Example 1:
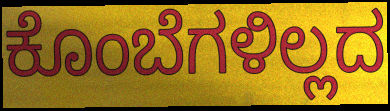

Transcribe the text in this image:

ಕೊಂಬೆಗಳಿಲ್ಲದ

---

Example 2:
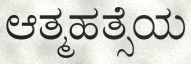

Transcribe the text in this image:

ಆತ್ಮಹತ್ಸೆಯ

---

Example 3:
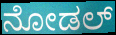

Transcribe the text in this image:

ನೋಡಲ್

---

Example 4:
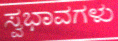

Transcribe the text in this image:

ಸ್ವಭಾವಗಳು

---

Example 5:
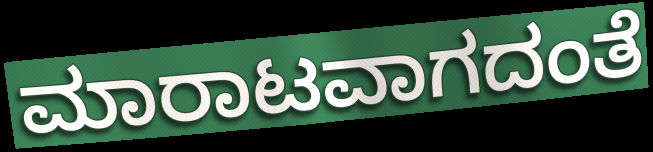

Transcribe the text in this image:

ಮಾರಾಟವಾಗದಂತೆ